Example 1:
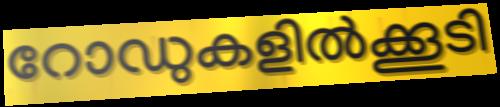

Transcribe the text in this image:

റോഡുകളിൽക്കൂടി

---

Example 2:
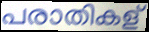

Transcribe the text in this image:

പരാതികള്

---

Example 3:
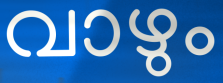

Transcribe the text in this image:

വാഴും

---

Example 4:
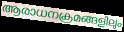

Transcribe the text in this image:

ആരാധനക്രമങ്ങളിലും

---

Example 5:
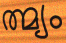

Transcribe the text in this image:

ത്മ്യം